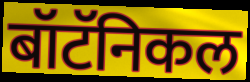
बॉटॅनिकल